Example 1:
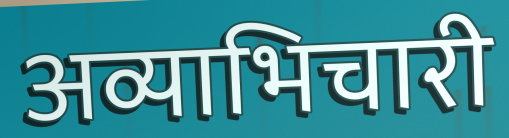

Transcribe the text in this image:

अव्याभिचारी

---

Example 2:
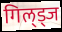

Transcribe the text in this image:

गिल्ड्ज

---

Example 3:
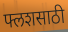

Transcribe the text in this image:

फ्लशसाठी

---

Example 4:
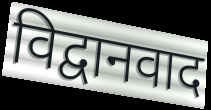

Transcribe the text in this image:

विद्वानवाद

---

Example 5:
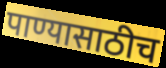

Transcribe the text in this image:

पाण्यासाठीच